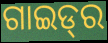
ଗାଇଡ୍‌ର